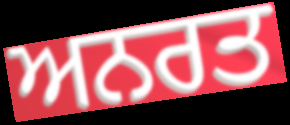
ਅਨਰਤ